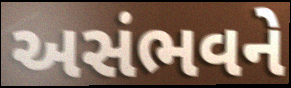
અસંભવને